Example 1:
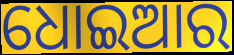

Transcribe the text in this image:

ଧୋଇଆର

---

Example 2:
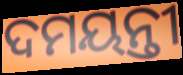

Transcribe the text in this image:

ଦମୟନ୍ତୀ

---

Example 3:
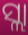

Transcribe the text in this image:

ସ୍ଲା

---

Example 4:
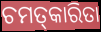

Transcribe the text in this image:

ଚମତ୍‌କାରିତା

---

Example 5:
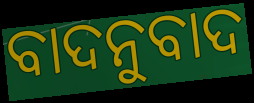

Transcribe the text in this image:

ବାଦନୁବାଦ